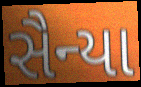
સૈન્યા